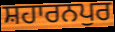
ਸ਼ਹਾਰਨਪੁਰ